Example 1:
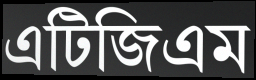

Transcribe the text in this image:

এটিজিএম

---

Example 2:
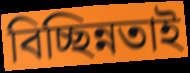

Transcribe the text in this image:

বিচ্ছিন্নতাই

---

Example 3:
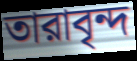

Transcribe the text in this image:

তারাবৃন্দ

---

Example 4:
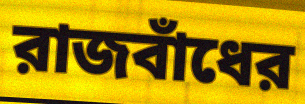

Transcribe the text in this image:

রাজবাঁধের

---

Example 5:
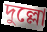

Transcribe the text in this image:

দুল্লো